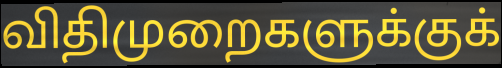
விதிமுறைகளுக்குக்